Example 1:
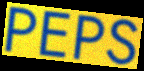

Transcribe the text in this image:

PEPS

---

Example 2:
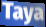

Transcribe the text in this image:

Taya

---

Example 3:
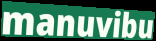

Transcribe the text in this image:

manuvibu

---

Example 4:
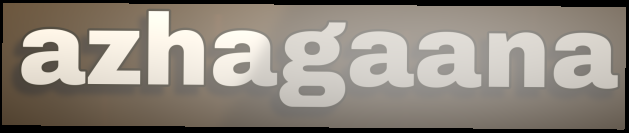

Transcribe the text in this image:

azhagaana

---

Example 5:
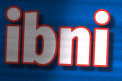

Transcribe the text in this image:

ibni